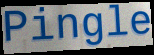
Pingle